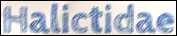
Halictidae